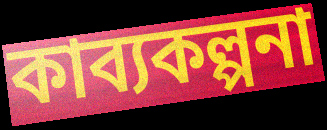
কাব্যকল্পনা